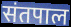
संतपाल